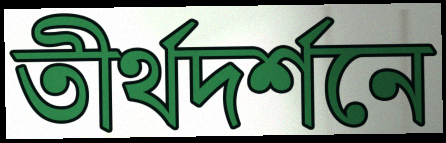
তীর্থদর্শনে